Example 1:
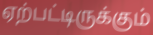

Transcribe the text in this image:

ஏற்பட்டிருக்கும்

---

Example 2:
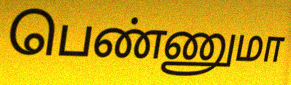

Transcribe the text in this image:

பெண்ணுமா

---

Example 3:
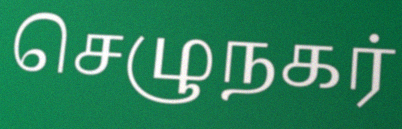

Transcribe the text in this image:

செழுநகர்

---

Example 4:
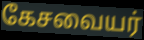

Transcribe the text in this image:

கேசவையர்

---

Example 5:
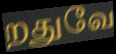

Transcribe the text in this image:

றதுவே